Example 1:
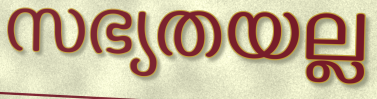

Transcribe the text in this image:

സഭ്യതയല്ല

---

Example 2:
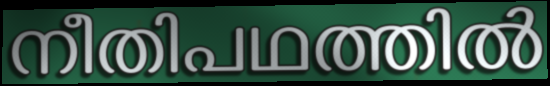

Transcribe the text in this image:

നീതിപഥത്തിൽ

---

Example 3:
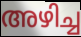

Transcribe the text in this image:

അഴിച്ച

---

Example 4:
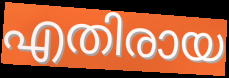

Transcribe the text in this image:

എതിരായ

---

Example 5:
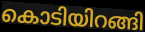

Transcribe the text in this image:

കൊടിയിറങ്ങി